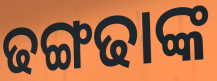
ଢଙ୍ଗଢାଙ୍କ